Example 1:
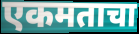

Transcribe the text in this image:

एकमताचा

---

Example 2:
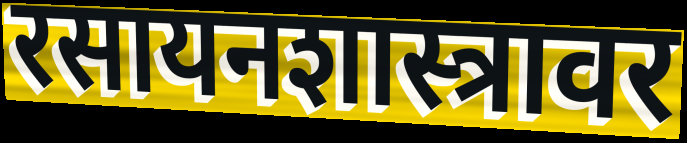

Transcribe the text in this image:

रसायनशास्त्रावर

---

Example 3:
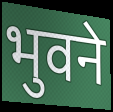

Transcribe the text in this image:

भुवने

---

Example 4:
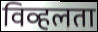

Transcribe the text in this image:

विव्हलता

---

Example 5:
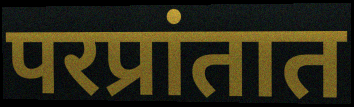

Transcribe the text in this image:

परप्रांतात